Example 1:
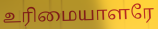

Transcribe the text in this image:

உரிமையாளரே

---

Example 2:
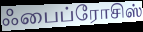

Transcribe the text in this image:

ஃபைப்ரோசிஸ்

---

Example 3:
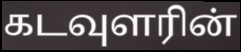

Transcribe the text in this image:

கடவுளரின்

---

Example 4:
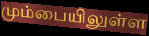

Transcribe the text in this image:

மும்பையிலுள்ள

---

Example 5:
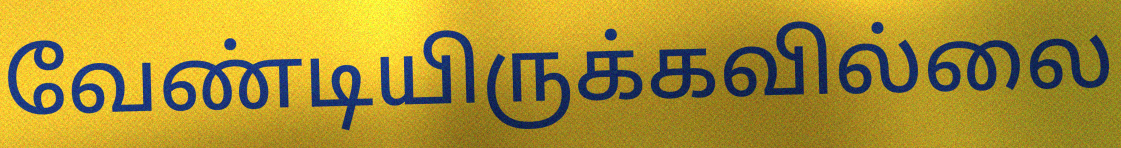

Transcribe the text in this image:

வேண்டியிருக்கவில்லை